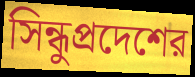
সিন্ধুপ্রদেশের